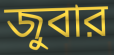
জুবার